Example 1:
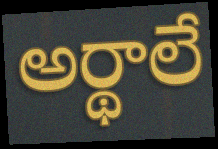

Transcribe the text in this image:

అర్థాలే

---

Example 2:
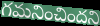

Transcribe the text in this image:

గమనించిందని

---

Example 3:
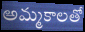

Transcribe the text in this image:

అమ్మకాలతో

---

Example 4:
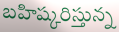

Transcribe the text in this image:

బహిష్కరిస్తున్న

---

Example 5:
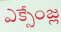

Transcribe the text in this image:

ఎక్సేంజ్ల